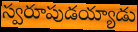
స్వరూపుడయ్యాడు